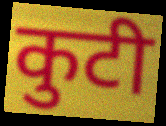
कुटी